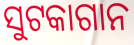
ସୁଟକାଗାନ